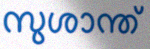
സുശാന്ത്